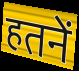
हतनें